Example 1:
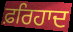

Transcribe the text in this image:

ਫ਼ਰਿਹਾਦ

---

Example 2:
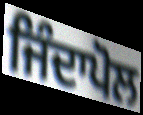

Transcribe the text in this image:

ਜਿੰਦਾਪੋਲ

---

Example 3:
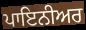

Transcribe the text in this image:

ਪਾਇਨੀਅਰ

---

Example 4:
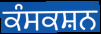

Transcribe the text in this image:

ਕੰਸਕਸ਼ਨ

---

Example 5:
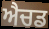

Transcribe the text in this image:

ਐਚਡ